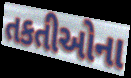
તકતીઓના